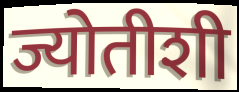
ज्योतीशी